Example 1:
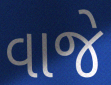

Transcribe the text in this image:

વાજે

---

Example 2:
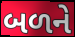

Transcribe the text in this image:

બળને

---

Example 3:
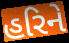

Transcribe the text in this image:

હરિને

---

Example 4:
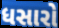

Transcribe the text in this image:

ધસારો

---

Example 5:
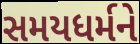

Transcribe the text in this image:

સમયધર્મને